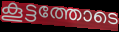
കൂട്ടത്തോടെ